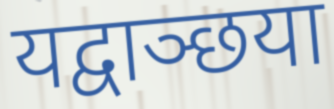
यद्वाञ्छया